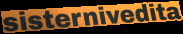
sisternivedita